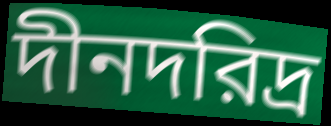
দীনদরিদ্র